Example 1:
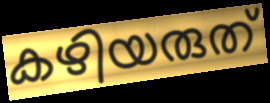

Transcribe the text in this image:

കഴിയരുത്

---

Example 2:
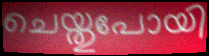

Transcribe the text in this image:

ചെയ്തുപോയി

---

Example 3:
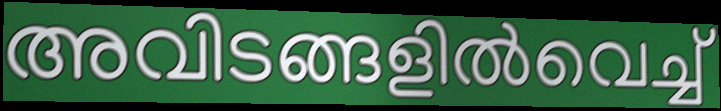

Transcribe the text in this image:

അവിടങ്ങളിൽവെച്ച്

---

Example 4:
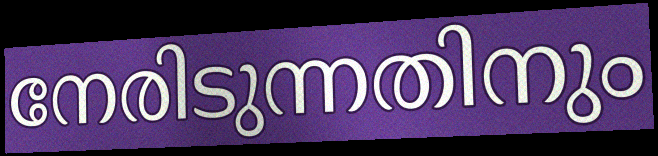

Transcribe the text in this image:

നേരിടുന്നതിനും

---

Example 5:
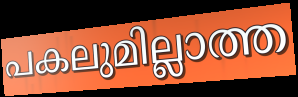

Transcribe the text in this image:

പകലുമില്ലാത്ത